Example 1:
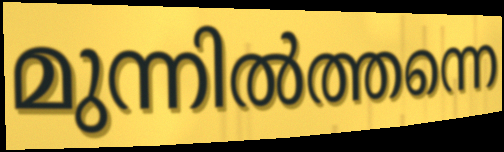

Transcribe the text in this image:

മുന്നിൽത്തന്നെ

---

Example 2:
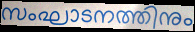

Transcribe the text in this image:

സംഘാടനത്തിനും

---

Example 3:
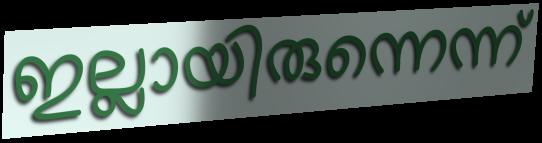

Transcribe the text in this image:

ഇല്ലായിരുന്നെന്ന്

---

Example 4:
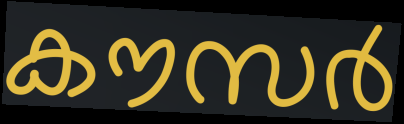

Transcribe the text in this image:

കൗസർ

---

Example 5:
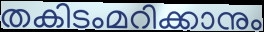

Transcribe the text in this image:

തകിടംമറിക്കാനും